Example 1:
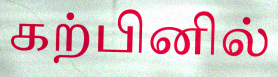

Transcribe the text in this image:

கற்பினில்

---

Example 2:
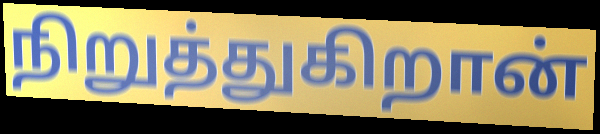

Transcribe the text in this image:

நிறுத்துகிறான்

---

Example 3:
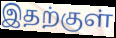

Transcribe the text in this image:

இதற்குள்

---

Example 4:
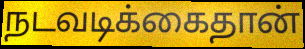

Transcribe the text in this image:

நடவடிக்கைதான்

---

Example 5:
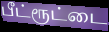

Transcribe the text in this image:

பீட்ரூட்டை